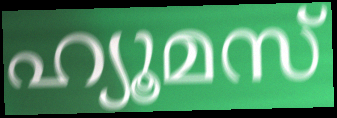
ഹ്യൂമസ്